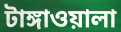
টাঙ্গাওয়ালা